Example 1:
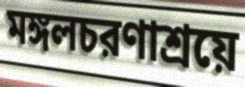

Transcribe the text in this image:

মঙ্গলচরণাশ্রয়ে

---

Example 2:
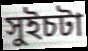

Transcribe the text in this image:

সুইচটা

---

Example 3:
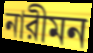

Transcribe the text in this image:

নারীমন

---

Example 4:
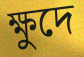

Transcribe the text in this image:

ক্ষুদে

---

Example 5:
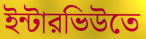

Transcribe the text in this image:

ইন্টারভিউতে